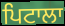
ਪਿਟਾਲਾ